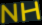
NH